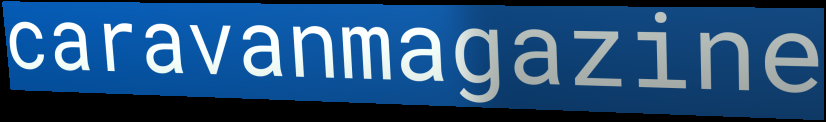
caravanmagazine